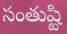
సంతుష్టి